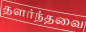
தளர்ந்தவை